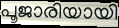
പൂജാരിയായി